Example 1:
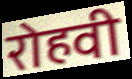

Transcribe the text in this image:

रोहवी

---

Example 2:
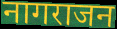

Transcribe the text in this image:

नागराजन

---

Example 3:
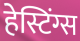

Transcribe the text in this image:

हेस्टिंग्स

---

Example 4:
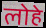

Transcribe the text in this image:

लोहे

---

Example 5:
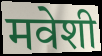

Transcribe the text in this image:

मवेशी